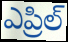
ఎప్రిల్